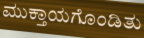
ಮುಕ್ತಾಯಗೊಂಡಿತು